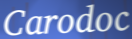
Carodoc